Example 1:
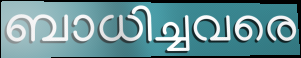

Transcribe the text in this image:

ബാധിച്ചവരെ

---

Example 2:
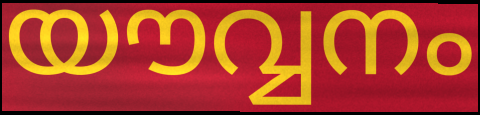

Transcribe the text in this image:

യൗവ്വനം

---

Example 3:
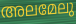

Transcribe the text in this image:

അലമേലു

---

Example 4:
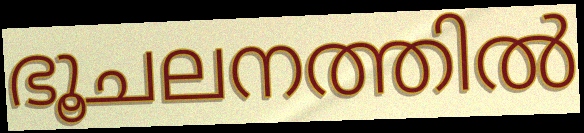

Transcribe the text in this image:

ഭൂചലനത്തിൽ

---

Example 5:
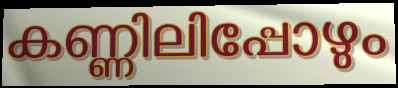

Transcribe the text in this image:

കണ്ണിലിപ്പോഴും